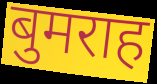
बुमराह